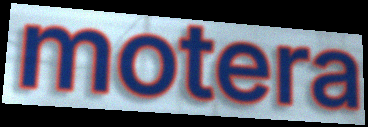
motera